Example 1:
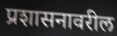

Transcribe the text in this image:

प्रशासनावरील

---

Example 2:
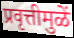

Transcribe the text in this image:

प्रवृत्तीमुळें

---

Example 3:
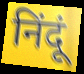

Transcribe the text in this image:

निंदूं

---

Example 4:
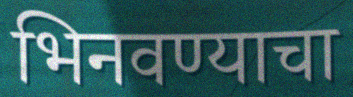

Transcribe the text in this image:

भिनवण्याचा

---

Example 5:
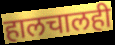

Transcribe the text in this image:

हालचालही